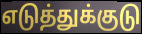
எடுத்துக்குடு